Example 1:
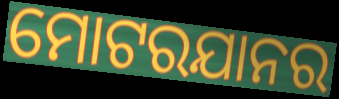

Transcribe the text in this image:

ମୋଟରଯାନର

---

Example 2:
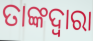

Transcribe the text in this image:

ତାଙ୍କଦ୍ଵାରା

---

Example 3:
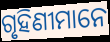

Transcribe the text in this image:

ଗୃହିଣୀମାନେ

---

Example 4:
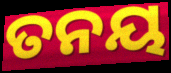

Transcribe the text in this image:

ତନୟ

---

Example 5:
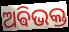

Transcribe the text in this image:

ଅଵିଭକ୍ତ